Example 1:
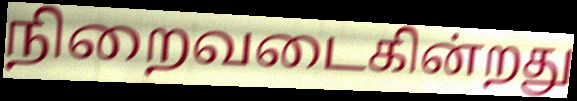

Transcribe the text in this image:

நிறைவடைகின்றது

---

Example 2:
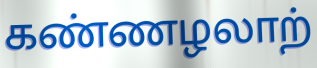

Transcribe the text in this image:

கண்ணழலாற்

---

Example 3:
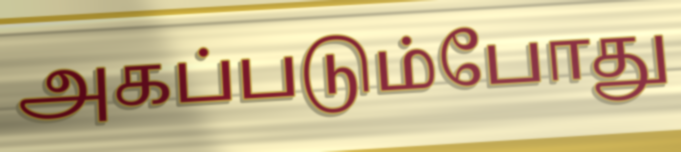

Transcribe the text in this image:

அகப்படும்போது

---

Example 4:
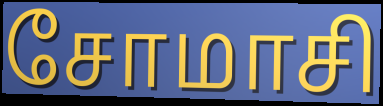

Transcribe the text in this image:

சோமாசி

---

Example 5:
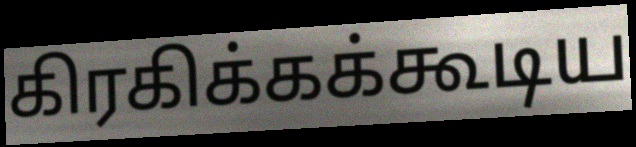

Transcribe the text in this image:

கிரகிக்கக்கூடிய